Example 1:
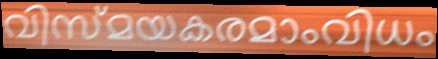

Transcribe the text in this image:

വിസ്മയകരമാംവിധം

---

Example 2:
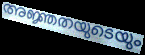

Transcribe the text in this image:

അജ്ഞതയുടെയും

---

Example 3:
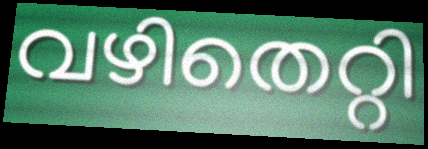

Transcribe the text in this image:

വഴിതെറ്റി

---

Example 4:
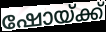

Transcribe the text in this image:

ഷോയ്ക്ക്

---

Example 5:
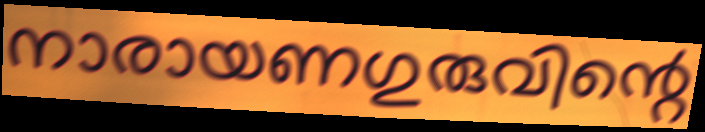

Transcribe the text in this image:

നാരായണഗുരുവിന്റെ